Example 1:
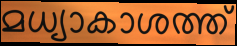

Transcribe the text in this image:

മധ്യാകാശത്ത്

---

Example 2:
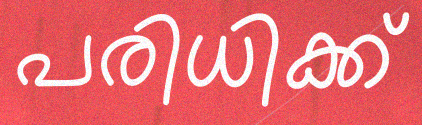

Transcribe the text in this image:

പരിധിക്ക്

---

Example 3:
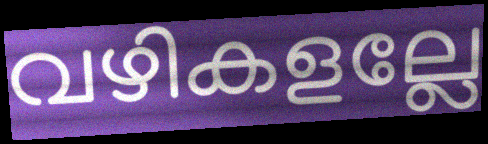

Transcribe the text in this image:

വഴികളല്ലേ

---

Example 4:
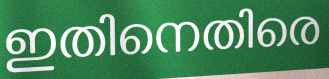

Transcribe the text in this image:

ഇതിനെതിരെ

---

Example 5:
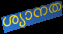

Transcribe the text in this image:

ശ്യാനത